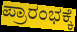
ಪ್ರಾರಂಭಕ್ಕೆ